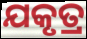
ଯକୃତ୍ର